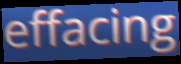
effacing